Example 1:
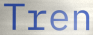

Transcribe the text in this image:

Tren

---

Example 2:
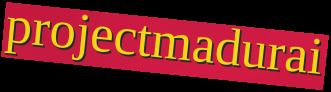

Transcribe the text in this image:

projectmadurai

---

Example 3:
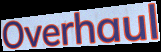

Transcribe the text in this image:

Overhaul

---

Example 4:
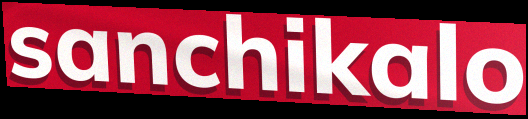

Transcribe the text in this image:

sanchikalo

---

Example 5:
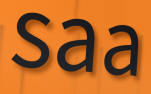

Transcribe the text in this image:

saa